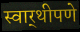
स्वार्थीपणे